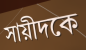
সায়ীদকে